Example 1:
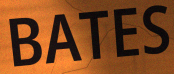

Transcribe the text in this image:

BATES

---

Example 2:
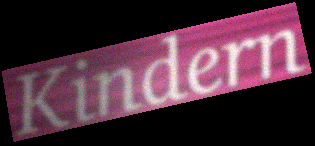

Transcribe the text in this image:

Kindern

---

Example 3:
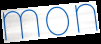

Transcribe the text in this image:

mon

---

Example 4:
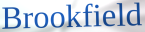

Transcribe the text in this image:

Brookfield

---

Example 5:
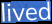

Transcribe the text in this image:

lived